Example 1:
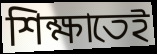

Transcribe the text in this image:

শিক্ষাতেই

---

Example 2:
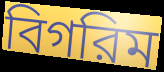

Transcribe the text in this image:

বিগরিম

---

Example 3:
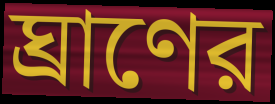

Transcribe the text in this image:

ঘ্রাণের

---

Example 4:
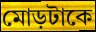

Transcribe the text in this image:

মোড়টাকে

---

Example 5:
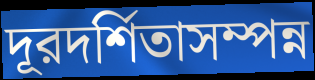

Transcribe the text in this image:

দূরদর্শিতাসম্পন্ন